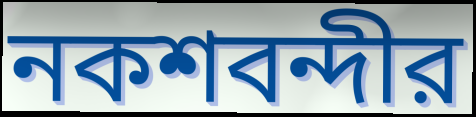
নকশবন্দীর